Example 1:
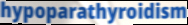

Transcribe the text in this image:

hypoparathyroidism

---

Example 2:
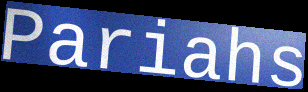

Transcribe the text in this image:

Pariahs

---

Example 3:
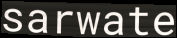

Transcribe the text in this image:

sarwate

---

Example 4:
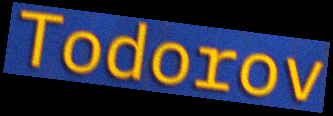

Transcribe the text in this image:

Todorov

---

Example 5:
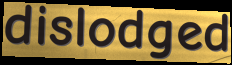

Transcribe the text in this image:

dislodged